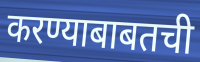
करण्याबाबतची